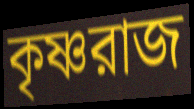
কৃষ্ণরাজ